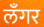
लँगर